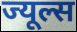
ज्यूल्स